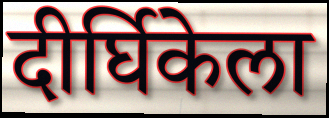
दीर्घिकेला